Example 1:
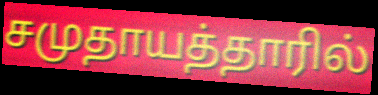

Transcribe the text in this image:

சமுதாயத்தாரில்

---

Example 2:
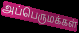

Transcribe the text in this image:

அப்பெருமக்கள்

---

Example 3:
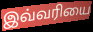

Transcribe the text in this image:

இவ்வரியை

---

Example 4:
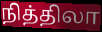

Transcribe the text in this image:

நித்திலா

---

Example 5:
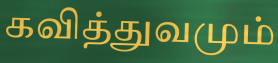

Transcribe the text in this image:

கவித்துவமும்